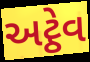
અટ્ઠેવ